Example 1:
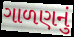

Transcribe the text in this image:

ગાળણનું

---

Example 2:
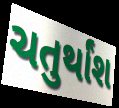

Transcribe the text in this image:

ચતુર્થાંશ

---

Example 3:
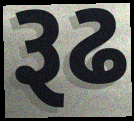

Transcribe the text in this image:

રૂઢ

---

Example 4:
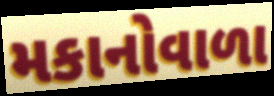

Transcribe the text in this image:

મકાનોવાળા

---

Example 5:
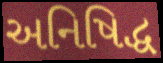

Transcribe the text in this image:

અનિષિદ્ધ